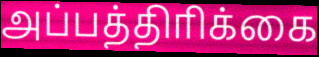
அப்பத்திரிக்கை